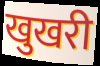
खुखरी